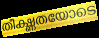
തീക്ഷ്ണതയോടെ